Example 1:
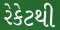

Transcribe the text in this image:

રેકેટથી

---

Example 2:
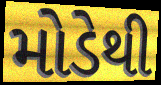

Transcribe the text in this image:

મોડેથી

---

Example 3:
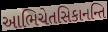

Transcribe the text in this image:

આભિચેતસિકાનન્તિ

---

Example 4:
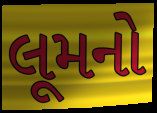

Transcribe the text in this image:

લૂમનો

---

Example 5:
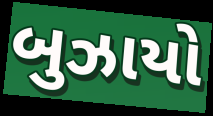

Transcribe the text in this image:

બુઝાયો